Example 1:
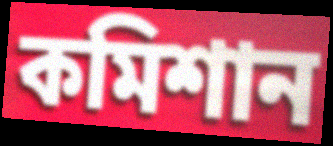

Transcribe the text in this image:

কমিশান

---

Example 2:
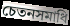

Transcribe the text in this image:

চেতনসমাধি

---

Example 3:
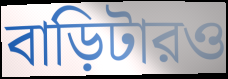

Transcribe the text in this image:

বাড়িটারও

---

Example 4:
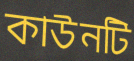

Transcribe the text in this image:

কাউনটি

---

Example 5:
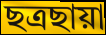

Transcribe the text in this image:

ছত্রছায়া